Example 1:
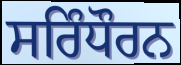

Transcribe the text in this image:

ਸਰਿੰਧੌਰਨ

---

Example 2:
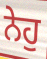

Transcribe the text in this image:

ਨੇਹੁ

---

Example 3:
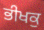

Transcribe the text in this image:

ਭੀਖਕੁ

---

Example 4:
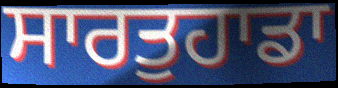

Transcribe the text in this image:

ਸਾਰਤੁਹਾਡਾ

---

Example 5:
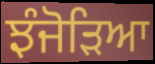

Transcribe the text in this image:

ਝੰਜੋੜਿਆ